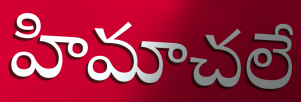
హిమాచలే